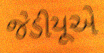
જેડીયૂએ